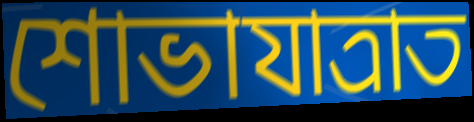
শোভাযাত্ৰাত